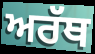
ਅਰੱਥ